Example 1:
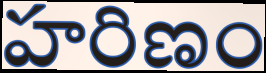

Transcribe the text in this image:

హరిణం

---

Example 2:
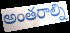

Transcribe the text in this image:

అంతరాల్ని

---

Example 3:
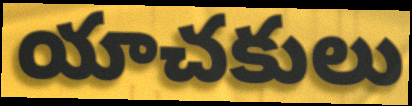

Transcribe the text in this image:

యాచకులు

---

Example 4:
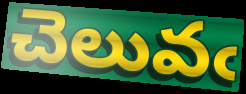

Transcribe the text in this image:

చెలువఁ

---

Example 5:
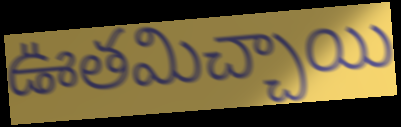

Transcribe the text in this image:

ఊతమిచ్చాయి